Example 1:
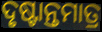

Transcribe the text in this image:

ଦୃଷ୍ଟାନ୍ତମାତ୍ର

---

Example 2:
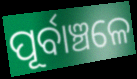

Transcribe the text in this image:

ପୂର୍ବାଞ୍ଚଳେ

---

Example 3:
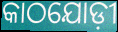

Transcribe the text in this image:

କାଠଯୋଡ଼ୀ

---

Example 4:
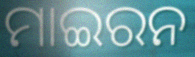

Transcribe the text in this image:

ମାଇରନ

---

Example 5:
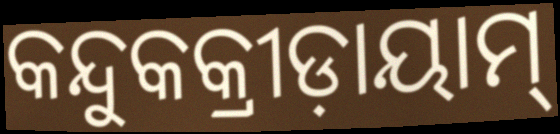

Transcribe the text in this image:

କନ୍ଦୁକକ୍ରୀଡ଼ାୟାମ୍